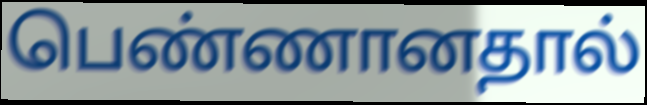
பெண்ணானதால்